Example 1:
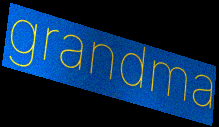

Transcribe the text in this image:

grandma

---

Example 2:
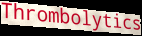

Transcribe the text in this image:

Thrombolytics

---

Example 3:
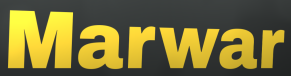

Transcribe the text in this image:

Marwar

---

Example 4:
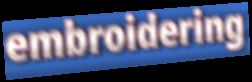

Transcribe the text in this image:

embroidering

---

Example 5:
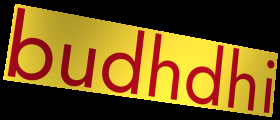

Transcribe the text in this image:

budhdhi